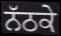
ਨੱਠਕੇ